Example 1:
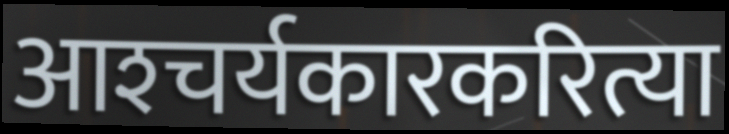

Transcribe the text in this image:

आश्‍चर्यकारकरित्या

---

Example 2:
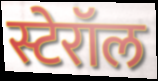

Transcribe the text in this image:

स्टेरॉल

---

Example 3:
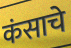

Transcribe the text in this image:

कंसाचे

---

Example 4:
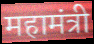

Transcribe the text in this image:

महामंत्री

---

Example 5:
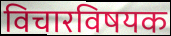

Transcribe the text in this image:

विचारविषयक